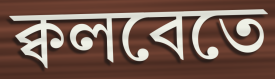
ক্বলবেতে